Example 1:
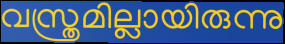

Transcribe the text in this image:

വസ്ത്രമില്ലായിരുന്നു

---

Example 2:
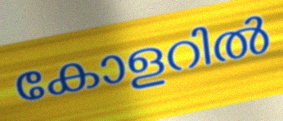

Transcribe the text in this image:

കോളറിൽ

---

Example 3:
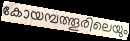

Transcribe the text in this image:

കോയമ്പത്തൂരിലെയും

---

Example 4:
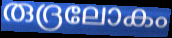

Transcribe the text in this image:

രുദ്രലോകം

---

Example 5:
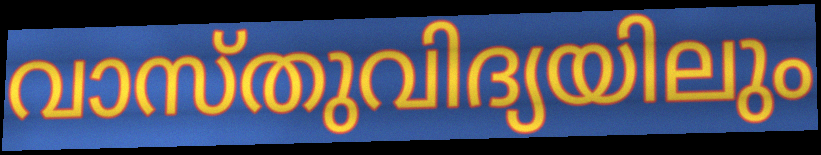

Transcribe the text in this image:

വാസ്തുവിദ്യയിലും